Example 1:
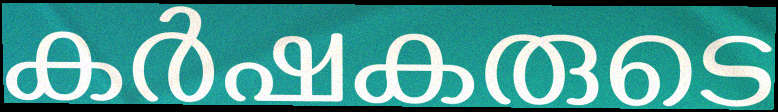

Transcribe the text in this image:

കർഷകരുടെ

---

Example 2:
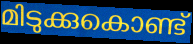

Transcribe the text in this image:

മിടുക്കുകൊണ്ട്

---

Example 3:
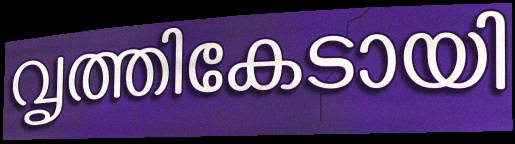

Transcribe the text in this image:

വൃത്തികേടായി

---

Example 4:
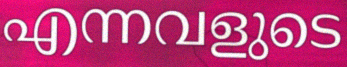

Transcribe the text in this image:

എന്നവളുടെ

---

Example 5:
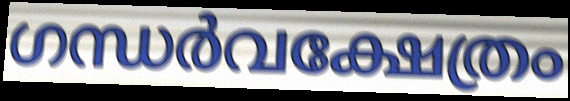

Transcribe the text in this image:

ഗന്ധർവക്ഷേത്രം